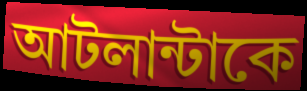
আটলান্টাকে